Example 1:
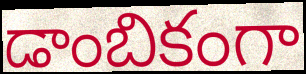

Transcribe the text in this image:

డాంబికంగా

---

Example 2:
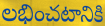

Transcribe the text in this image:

లభించటానికి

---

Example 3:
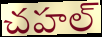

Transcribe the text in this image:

చహల్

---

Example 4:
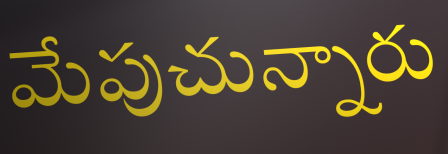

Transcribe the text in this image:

మేపుచున్నారు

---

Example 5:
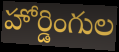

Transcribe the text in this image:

హోర్డింగుల